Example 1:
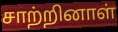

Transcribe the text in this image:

சாற்றினாள்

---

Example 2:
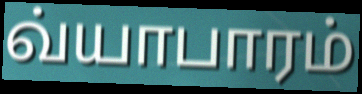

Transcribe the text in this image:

வ்யாபாரம்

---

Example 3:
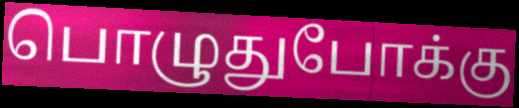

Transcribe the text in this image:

பொழுதுபோக்கு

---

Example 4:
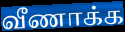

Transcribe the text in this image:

வீணாக்க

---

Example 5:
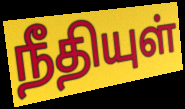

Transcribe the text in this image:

நீதியுள்